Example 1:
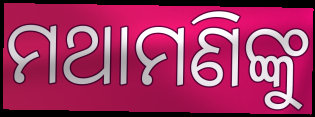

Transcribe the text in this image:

ମଥାମଣିଙ୍କୁ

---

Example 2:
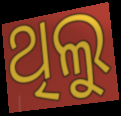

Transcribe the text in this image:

ଥିଲୁ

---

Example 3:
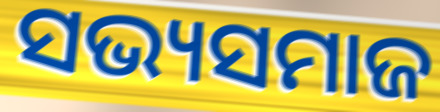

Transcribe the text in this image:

ସଭ୍ୟସମାଜ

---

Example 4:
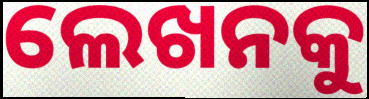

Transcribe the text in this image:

ଲେଖନକୁ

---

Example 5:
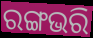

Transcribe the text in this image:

ରଙ୍ଗଭରି